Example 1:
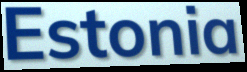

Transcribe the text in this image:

Estonia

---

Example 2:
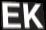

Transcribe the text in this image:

EK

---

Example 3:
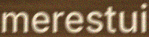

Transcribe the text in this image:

merestui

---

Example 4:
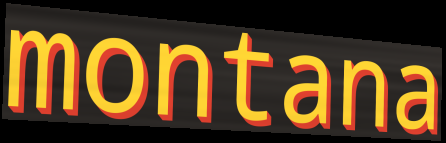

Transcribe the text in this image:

montana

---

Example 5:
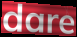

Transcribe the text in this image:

dare